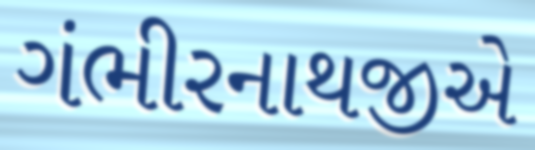
ગંભીરનાથજીએ